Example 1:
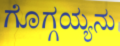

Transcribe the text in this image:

ಗೊಗ್ಗಯ್ಯನು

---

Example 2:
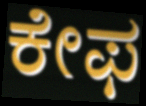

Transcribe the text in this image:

ಕೇಫ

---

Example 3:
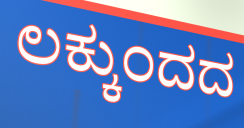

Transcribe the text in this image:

ಲಕ್ಕುಂದದ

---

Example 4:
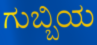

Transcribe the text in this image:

ಗುಬ್ಬಿಯ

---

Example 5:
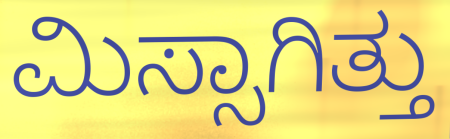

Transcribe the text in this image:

ಮಿಸ್ಸಾಗಿತ್ತು